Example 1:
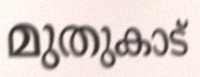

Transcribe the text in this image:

മുതുകാട്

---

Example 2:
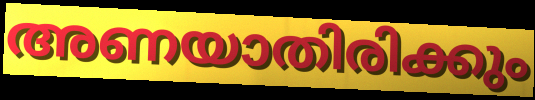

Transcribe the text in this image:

അണയാതിരിക്കും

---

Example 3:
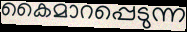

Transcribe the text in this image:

കൈമാറപ്പെടുന്ന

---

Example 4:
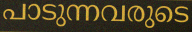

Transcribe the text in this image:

പാടുന്നവരുടെ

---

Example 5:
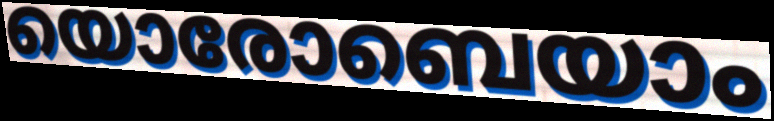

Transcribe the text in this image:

യൊരോബെയാം